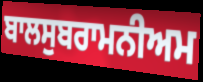
ਬਾਲਸੁਬਰਾਮਨੀਅਮ